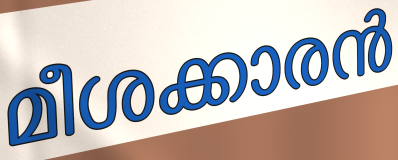
മീശക്കാരൻ